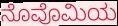
ನೊವೊಮಿಯ